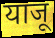
याजू